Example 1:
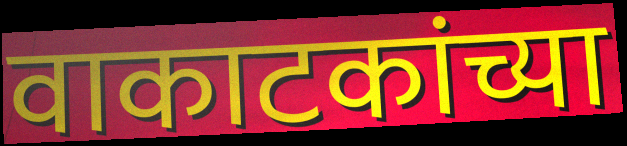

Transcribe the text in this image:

वाकाटकांच्या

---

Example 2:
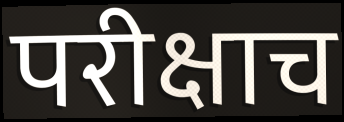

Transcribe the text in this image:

परीक्षाच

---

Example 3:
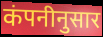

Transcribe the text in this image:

कंपनीनुसार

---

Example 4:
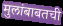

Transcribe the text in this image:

मुलांबाबतची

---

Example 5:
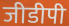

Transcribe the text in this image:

जीडीपी